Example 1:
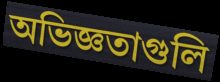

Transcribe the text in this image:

অভিজ্ঞতাগুলি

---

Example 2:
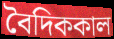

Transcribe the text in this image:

বৈদিককাল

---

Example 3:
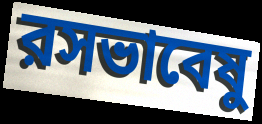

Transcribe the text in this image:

রসভাবেষু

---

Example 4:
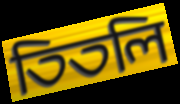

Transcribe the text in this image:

তিতলি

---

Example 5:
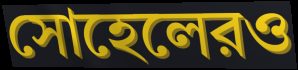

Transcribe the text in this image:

সোহেলেরও